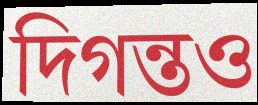
দিগন্তও